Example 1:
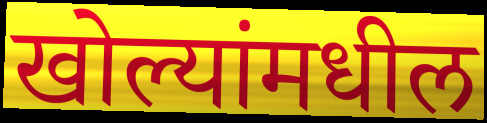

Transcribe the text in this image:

खोल्यांमधील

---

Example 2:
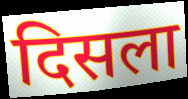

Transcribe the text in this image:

दिसला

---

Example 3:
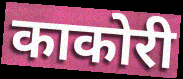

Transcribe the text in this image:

काकोरी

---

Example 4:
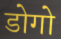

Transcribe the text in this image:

डोगो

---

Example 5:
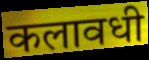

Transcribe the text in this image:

कलावधी